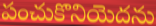
పంచుకొనియెదను